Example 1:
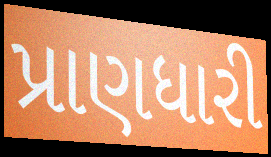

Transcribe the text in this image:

પ્રાણધારી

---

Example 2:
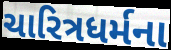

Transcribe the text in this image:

ચારિત્રધર્મના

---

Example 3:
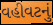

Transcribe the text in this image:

વહીવટનું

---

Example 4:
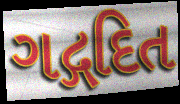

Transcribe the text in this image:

ગદ્ગદિત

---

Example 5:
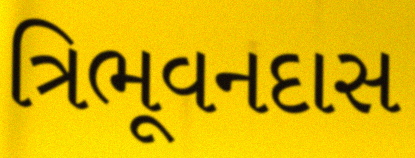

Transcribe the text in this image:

ત્રિભૂવનદાસ